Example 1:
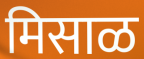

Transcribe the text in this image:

मिसाळ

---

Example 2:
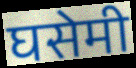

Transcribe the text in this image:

घसेमी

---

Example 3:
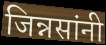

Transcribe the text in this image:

जिन्नसांनी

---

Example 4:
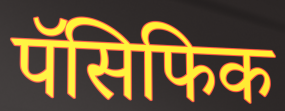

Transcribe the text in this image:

पॅसिफिक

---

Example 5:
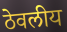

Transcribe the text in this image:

ठेवलीय